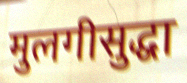
मुलगीसुद्धा